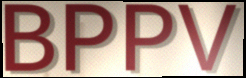
BPPV